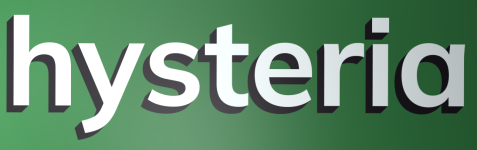
hysteria